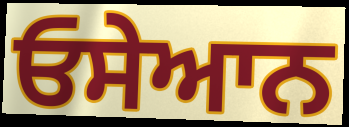
ਓਸੇਆਨ